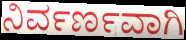
ನಿರ್ವರ್ಣವಾಗಿ